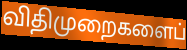
விதிமுறைகளைப்